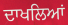
ਦਾਖਲਿਆਂ